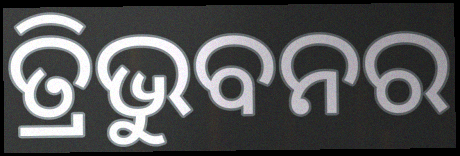
ତ୍ରିଭୁବନର